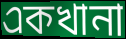
একখানা